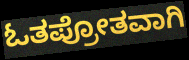
ಓತಪ್ರೋತವಾಗಿ